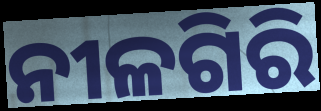
ନୀଳଗିରି